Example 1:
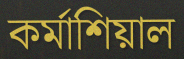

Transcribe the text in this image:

কর্মাশিয়াল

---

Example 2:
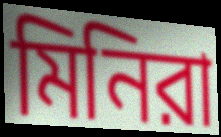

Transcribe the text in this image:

মিনিরা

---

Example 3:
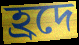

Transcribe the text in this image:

হ্রদে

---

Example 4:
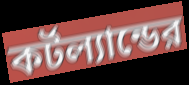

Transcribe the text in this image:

কর্টল্যান্ডের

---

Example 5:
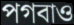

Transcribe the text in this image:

পগবাও